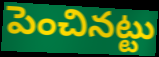
పెంచినట్టు